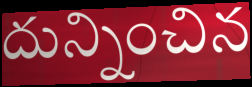
దున్నించిన